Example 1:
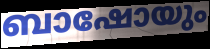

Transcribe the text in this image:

ബാഷോയും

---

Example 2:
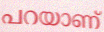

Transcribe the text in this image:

പറയാണ്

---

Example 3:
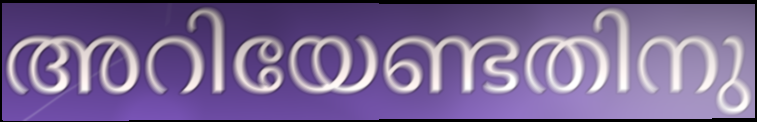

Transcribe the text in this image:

അറിയേണ്ടതിനു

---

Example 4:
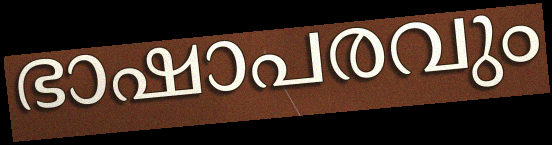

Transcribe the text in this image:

ഭാഷാപരവും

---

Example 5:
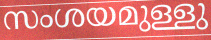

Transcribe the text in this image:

സംശയമുള്ളു